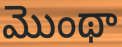
మొంథా